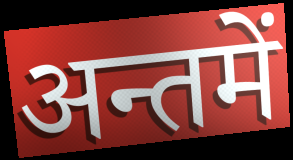
अन्तमें